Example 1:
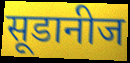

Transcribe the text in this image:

सूडानीज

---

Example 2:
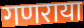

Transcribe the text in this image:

गणराया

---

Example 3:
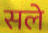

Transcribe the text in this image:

सले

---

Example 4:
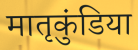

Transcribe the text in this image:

मातृकुंडिया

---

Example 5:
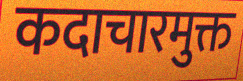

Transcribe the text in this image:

कदाचारमुक्त